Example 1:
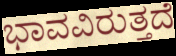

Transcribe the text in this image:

ಭಾವವಿರುತ್ತದೆ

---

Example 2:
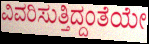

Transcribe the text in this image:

ವಿವರಿಸುತ್ತಿದ್ದಂತೆಯೇ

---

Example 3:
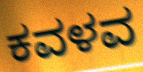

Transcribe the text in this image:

ಕವಳವ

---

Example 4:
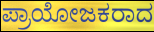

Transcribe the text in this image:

ಪ್ರಾಯೋಜಕರಾದ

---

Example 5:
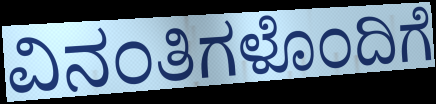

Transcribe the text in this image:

ವಿನಂತಿಗಳೊಂದಿಗೆ